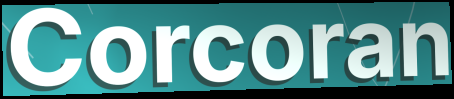
Corcoran